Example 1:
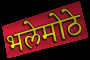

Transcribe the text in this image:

भलेमोठे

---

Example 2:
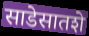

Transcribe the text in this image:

साडेसातशे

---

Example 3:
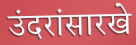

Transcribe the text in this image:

उंदरांसारखे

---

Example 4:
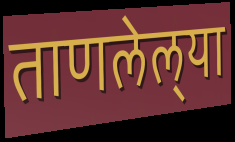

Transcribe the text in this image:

ताणलेल्या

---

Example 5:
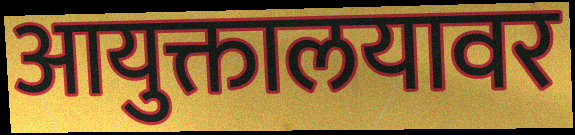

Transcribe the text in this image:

आयुक्तालयावर